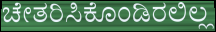
ಚೇತರಿಸಿಕೊಂಡಿರಲಿಲ್ಲ